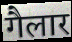
गैलार